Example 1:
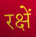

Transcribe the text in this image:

रक्षें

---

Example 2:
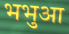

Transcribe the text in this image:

भभुआ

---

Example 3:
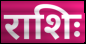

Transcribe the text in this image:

राशिः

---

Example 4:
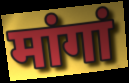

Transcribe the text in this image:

मांगां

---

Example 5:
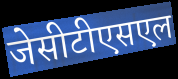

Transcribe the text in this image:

जेसीटीएसएल